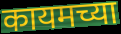
कायमच्या